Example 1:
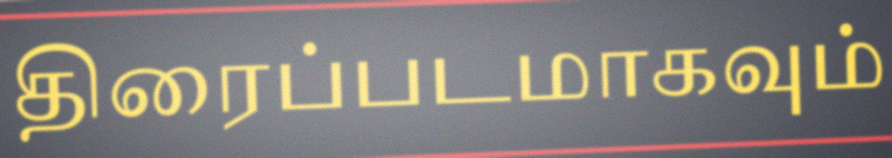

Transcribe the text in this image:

திரைப்படமாகவும்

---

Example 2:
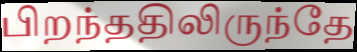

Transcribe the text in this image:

பிறந்ததிலிருந்தே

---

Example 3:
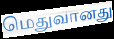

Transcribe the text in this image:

மெதுவானது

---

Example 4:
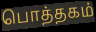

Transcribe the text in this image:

பொத்தகம்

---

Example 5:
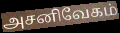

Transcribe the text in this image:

அசனிவேகம்